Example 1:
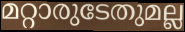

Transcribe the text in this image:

മറ്റാരുടേതുമല്ല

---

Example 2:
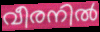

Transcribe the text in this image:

വീരനിൽ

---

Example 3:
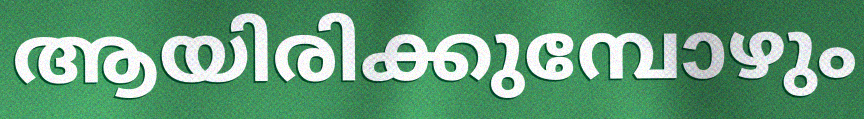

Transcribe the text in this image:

ആയിരിക്കുമ്പോഴും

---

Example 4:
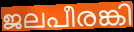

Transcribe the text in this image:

ജലപീരങ്കി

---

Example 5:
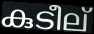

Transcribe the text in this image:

കുടീല്